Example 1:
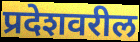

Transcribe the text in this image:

प्रदेशवरील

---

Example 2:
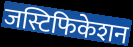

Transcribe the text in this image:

जस्टिफिकेशन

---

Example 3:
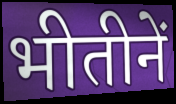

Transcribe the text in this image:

भीतीनें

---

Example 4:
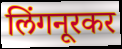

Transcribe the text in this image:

लिंगनूरकर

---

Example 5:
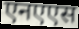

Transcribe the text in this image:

एनएएस